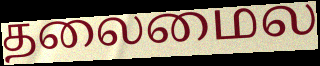
தலைமைல